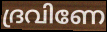
ദ്രവിണേ